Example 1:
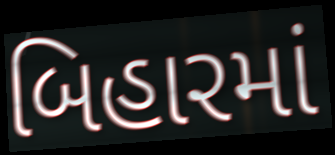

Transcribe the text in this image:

બિહારમાં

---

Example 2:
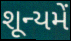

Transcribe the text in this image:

શૂન્યમેં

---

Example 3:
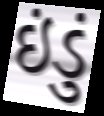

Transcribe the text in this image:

ઇંડું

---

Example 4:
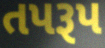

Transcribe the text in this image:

તપરૂપ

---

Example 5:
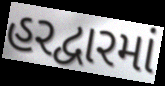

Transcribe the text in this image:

હરદ્વારમાં